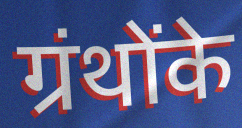
ग्रंथोंके